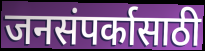
जनसंपर्कासाठी